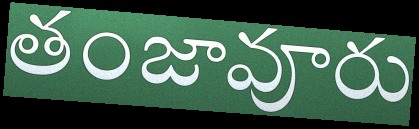
తంజావూరు